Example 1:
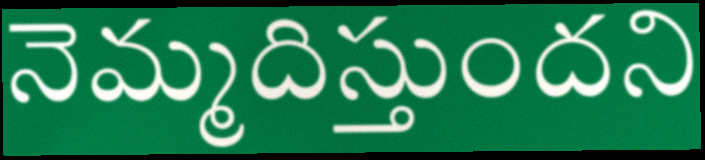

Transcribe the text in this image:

నెమ్మదిస్తుందని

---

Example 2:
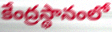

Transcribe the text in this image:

కేంద్రస్థానంలో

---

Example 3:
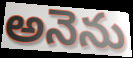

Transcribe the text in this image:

అనెను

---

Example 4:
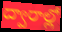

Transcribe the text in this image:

ద్వారాల్లో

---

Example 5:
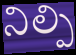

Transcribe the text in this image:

నిల్పి